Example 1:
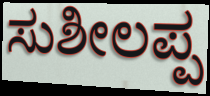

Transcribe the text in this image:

ಸುಶೀಲಪ್ಪ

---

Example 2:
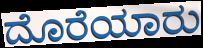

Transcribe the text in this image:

ದೊರೆಯಾರು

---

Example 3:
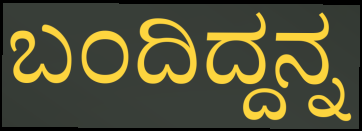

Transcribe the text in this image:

ಬಂದಿದ್ದನ್ನ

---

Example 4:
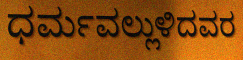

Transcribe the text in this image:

ಧರ್ಮವಲ್ಲುಳಿದವರ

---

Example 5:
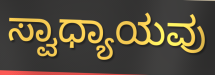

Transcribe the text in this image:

ಸ್ವಾಧ್ಯಾಯವು